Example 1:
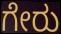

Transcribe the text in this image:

ಗೇರು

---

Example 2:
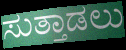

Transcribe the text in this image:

ಸುತ್ತಾಡಲು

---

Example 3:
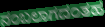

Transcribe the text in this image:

ನಂಬಲಾಗದಂತಹ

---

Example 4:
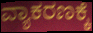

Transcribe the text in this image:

ವ್ಯಾಕರಣಕ್ಕೆ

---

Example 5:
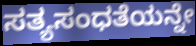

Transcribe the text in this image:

ಸತ್ಯಸಂಧತೆಯನ್ನೇ